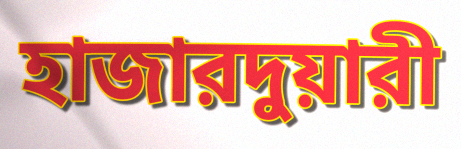
হাজারদুয়ারী